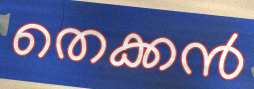
തെക്കൻ